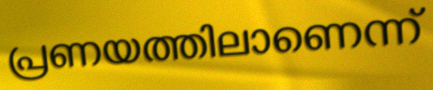
പ്രണയത്തിലാണെന്ന്